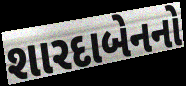
શારદાબેનનો